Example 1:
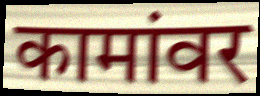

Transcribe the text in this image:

कामांवर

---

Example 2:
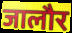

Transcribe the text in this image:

जालौर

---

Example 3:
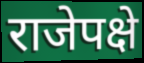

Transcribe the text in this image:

राजेपक्षे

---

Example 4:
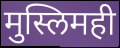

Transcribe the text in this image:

मुस्लिमही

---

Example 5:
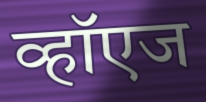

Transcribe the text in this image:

व्हॉएज